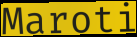
Maroti